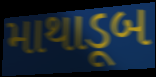
માથાડૂબ